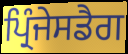
ਪ੍ਰਿੰਜੇਸਡੈਗ